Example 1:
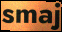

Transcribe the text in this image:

smaj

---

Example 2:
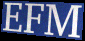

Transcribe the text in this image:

EFM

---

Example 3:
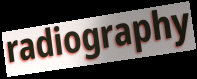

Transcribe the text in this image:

radiography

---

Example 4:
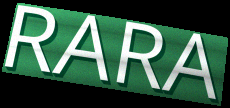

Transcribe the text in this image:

RARA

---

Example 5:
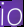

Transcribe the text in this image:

io